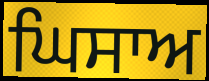
ਘਿਸਾਅ